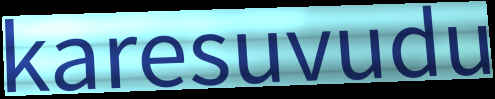
karesuvudu